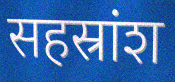
सहस्रांश